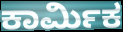
ಕಾರ್ಮಿಕ